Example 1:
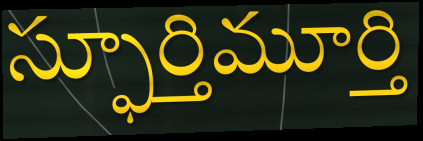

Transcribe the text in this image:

స్ఫూర్తిమూర్తి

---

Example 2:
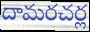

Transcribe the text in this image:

దామరచర్ల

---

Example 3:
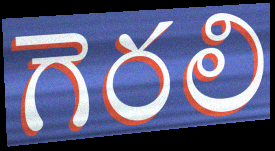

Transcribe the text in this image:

గెరలి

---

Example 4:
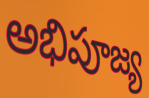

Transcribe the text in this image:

అభిపూజ్య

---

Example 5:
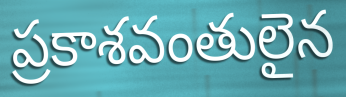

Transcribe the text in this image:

ప్రకాశవంతులైన